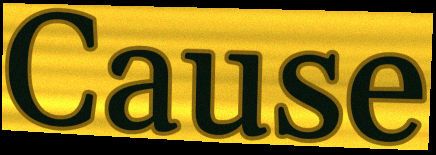
Cause